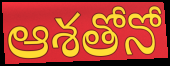
ఆశతోనో